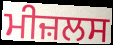
ਮੀਜ਼ਲਸ